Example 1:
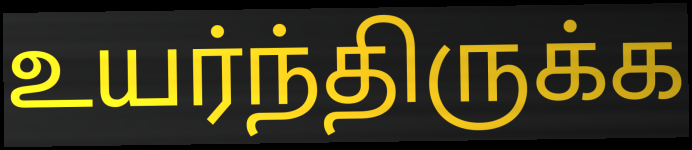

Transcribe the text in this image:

உயர்ந்திருக்க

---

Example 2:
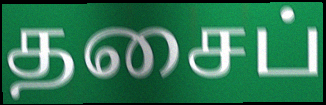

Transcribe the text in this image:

தசைப்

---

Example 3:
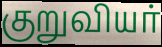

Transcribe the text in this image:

குறுவியர்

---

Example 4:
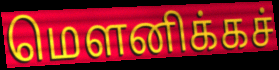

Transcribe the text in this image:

மௌனிக்கச்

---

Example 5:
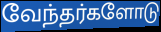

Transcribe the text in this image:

வேந்தர்களோடு